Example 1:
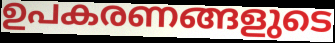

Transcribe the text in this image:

ഉപകരണങ്ങളുടെ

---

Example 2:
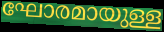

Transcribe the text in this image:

ഘോരമായുള്ള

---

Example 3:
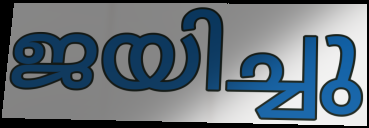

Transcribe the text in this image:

ജയിച്ചു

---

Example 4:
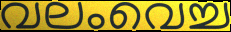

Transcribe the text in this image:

വലംവെച്ച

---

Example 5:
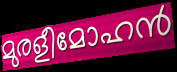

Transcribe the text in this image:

മുരളീമോഹൻ